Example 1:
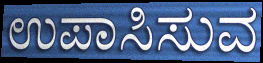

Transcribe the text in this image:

ಉಪಾಸಿಸುವ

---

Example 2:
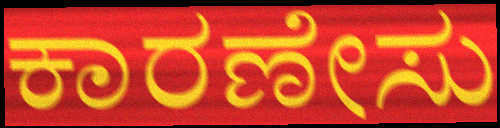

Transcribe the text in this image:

ಕಾರಣೇಸು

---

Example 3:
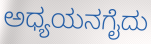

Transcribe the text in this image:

ಅಧ್ಯಯನಗೈದು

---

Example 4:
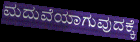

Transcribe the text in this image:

ಮದುವೆಯಾಗುವುದಕ್ಕೆ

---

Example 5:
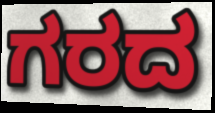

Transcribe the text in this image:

ಗರದ